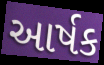
આર્ષક